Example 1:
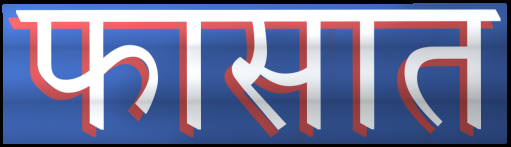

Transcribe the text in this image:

फासात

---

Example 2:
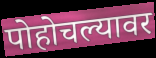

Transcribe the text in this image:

पोहोचल्यावर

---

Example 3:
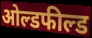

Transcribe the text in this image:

ओल्डफील्ड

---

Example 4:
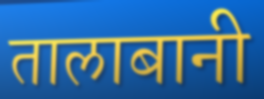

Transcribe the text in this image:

तालाबानी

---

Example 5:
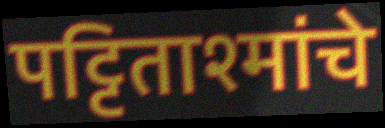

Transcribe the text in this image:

पट्टिताश्मांचे